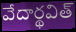
వేదార్థవిత్